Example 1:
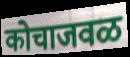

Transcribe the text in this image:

कोचाजवळ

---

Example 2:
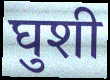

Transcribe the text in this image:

घुशी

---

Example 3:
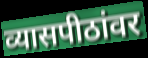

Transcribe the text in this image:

व्यासपीठांवर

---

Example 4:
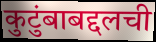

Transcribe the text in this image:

कुटुंबाबद्दलची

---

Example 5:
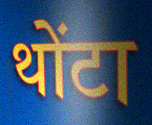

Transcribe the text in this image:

थोंटा